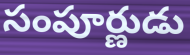
సంపూర్ణుడు